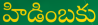
హిడింబకు